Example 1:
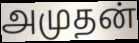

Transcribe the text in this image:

அமுதன்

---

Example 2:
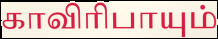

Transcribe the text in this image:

காவிரிபாயும்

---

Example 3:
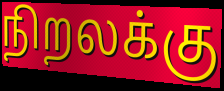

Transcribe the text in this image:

நிறலக்கு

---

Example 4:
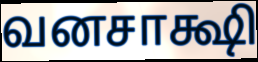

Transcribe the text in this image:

வனசாக்ஷி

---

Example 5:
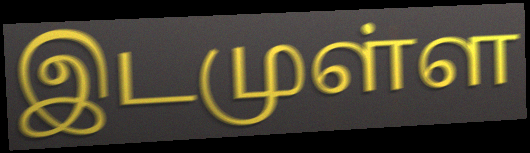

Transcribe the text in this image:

இடமுள்ள